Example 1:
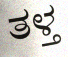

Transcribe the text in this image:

ತಳ್ತ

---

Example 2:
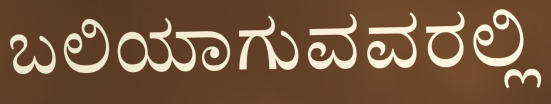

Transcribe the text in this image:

ಬಲಿಯಾಗುವವರಲ್ಲಿ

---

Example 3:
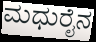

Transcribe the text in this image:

ಮಧುರೈನ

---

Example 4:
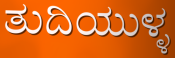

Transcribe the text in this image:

ತುದಿಯುಳ್ಳ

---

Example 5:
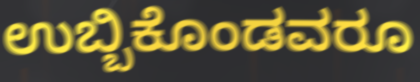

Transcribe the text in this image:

ಉಬ್ಬಿಕೊಂಡವರೂ